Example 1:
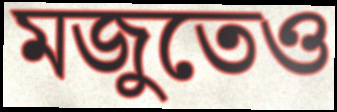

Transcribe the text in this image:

মজুতেও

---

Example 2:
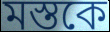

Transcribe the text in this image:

মস্তকে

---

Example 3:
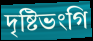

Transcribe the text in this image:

দৃষ্টিভংগি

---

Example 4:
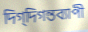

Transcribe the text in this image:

দিগ্‌দিগন্তব্যাপী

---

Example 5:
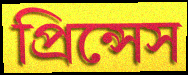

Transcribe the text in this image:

প্রিন্সেস